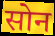
सोन